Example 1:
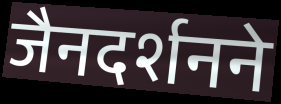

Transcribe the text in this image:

जैनदर्शनने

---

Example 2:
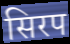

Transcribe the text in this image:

सिरप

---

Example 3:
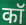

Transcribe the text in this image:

कॉ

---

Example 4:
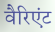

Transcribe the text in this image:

वैरिएंट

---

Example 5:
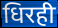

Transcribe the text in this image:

धिरही